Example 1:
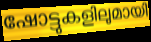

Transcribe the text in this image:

ഷോട്ടുകളിലുമായി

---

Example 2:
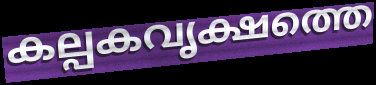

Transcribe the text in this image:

കല്പകവൃക്ഷത്തെ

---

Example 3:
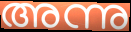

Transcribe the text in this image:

അന്നു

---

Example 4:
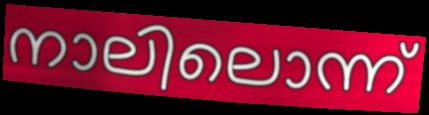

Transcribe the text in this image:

നാലിലൊന്ന്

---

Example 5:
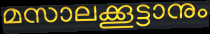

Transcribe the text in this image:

മസാലക്കൂട്ടാനും